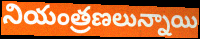
నియంత్రణలున్నాయి